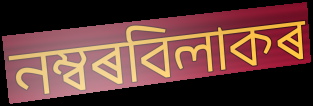
নম্বৰবিলাকৰ